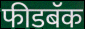
फीडबॅक